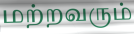
மற்றவரும்